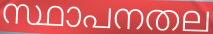
സ്ഥാപനതല